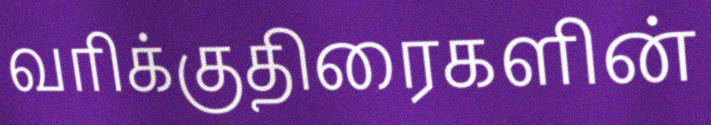
வரிக்குதிரைகளின்